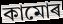
কামোৰ